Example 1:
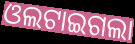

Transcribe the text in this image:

ଓଲଟାଇଗଲା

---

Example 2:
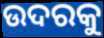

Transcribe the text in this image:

ଉଦରକୁ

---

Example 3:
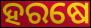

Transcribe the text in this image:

ହରଷେ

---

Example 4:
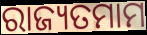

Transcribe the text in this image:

ରାଜ୍ୟତମାମ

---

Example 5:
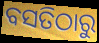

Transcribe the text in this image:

ବସତିଠାରୁ